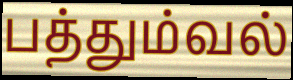
பத்தும்வல்